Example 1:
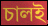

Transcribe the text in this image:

চালই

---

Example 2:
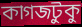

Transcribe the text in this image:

কাগজটুকু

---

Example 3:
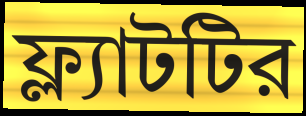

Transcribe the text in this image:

ফ্ল্যাটটির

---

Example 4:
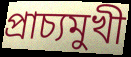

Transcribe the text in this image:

প্রাচ্যমুখী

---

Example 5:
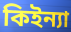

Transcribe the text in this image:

কিইন্যা